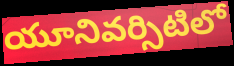
యూనివర్సిటిలో